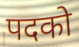
पदको